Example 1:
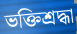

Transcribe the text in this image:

ভক্তিশ্রদ্ধা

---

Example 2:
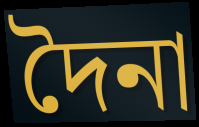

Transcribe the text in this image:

দৈনা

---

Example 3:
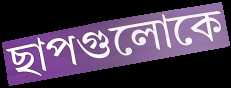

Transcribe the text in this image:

ছাপগুলোকে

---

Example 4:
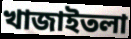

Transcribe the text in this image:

খাজাইতলা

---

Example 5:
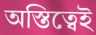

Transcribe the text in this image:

অস্তিত্বেই